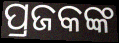
ପ୍ରଜକଙ୍କ